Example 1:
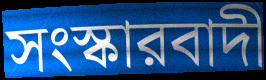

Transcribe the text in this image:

সংস্কারবাদী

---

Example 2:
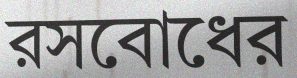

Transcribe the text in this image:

রসবোধের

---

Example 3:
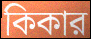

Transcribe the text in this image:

কিকার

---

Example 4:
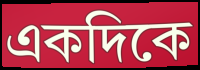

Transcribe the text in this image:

একদিকে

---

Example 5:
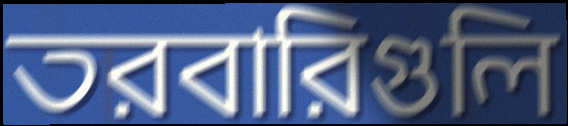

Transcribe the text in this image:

তরবারিগুলি